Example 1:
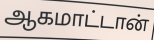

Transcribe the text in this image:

ஆகமாட்டான்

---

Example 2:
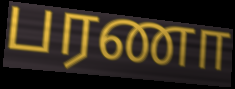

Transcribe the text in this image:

பரணா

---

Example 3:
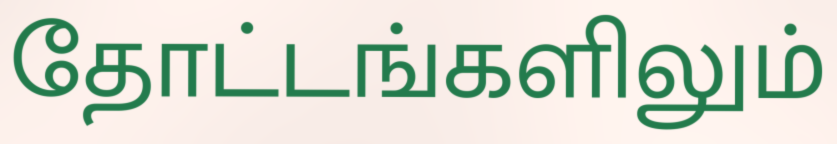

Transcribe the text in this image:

தோட்டங்களிலும்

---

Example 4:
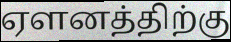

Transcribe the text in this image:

ஏளனத்திற்கு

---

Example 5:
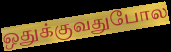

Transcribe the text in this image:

ஒதுக்குவதுபோல